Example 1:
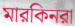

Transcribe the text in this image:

মারকিনরা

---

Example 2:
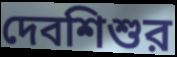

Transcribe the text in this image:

দেবশিশুর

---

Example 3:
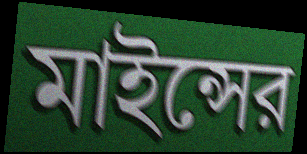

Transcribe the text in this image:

মাইন্সের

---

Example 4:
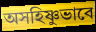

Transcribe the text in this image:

অসহিষ্ণুভাবে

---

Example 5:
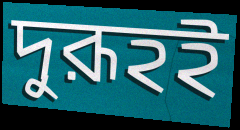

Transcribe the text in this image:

দুরূহই